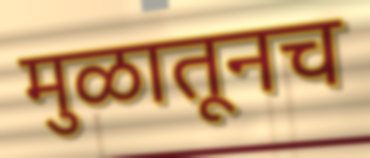
मुळातूनच